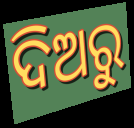
ଦିଅରୁ